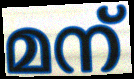
മന്